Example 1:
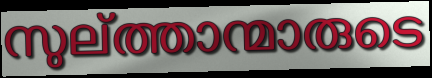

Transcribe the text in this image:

സുല്ത്താന്മാരുടെ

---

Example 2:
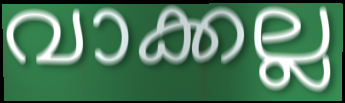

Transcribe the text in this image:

വാക്കല്ല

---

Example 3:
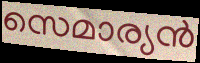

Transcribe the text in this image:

സെമാര്യൻ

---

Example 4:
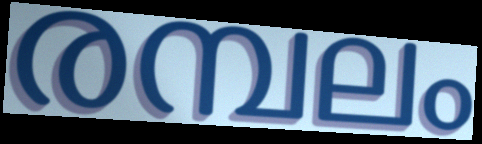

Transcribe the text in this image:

രമ്പലം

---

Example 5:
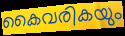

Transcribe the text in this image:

കൈവരികയും